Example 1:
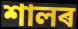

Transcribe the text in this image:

শালৰ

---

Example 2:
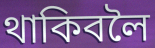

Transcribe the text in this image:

থাকিবলৈ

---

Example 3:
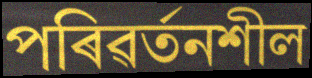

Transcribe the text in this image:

পৰিৱৰ্তনশীল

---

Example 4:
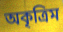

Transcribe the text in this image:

অকৃত্ৰিম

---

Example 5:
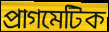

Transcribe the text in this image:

প্ৰাগমেটিক